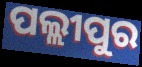
ପଲ୍ଲୀପୁର